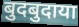
बुदबुदाया